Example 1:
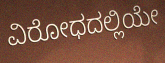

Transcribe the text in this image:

ವಿರೋಧದಲ್ಲಿಯೇ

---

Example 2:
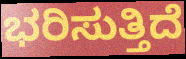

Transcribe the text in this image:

ಭರಿಸುತ್ತಿದೆ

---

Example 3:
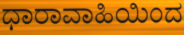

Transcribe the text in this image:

ಧಾರಾವಾಹಿಯಿಂದ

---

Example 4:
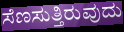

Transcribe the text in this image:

ಸೆಣಸುತ್ತಿರುವುದು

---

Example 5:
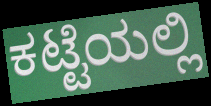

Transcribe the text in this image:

ಕಟ್ಟೆಯಲ್ಲಿ